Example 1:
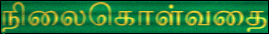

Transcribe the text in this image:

நிலைகொள்வதை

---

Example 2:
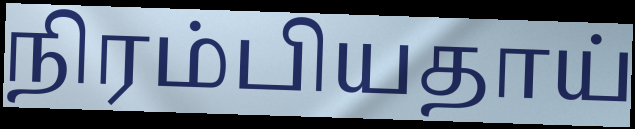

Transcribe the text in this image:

நிரம்பியதாய்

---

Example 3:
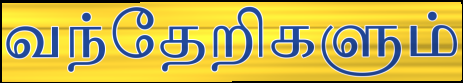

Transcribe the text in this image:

வந்தேறிகளும்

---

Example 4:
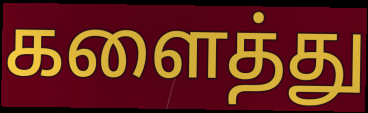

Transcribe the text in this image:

களைத்து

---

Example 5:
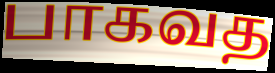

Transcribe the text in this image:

பாகவத